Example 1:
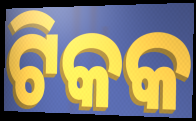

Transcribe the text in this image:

ଟିକକ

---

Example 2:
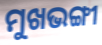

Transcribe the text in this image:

ମୁଖଭଙ୍ଗୀ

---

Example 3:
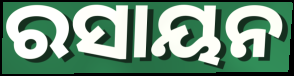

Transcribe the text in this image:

ରସାୟନ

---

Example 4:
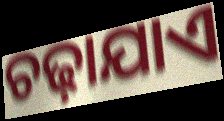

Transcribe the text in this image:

ଚଢ଼ାଯାଏ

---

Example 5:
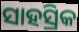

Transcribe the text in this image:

ସାହସ୍ରିକ